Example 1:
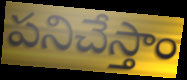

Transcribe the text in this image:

పనిచేస్తాం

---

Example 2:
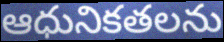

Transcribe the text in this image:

ఆధునికతలను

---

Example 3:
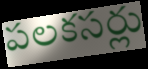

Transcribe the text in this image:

పలకసర్లు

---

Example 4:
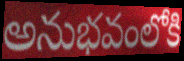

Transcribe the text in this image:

అనుభవంలోకి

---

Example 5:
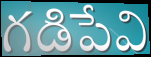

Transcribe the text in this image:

గడిపేవి